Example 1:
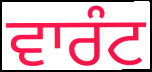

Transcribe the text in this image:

ਵਾਰੰਟ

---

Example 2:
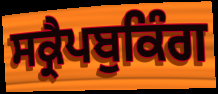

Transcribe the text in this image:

ਸਕ੍ਰੈਪਬੁਕਿੰਗ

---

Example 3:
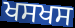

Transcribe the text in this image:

ਖਸਖਸ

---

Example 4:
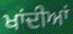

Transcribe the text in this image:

ਖਾਂਦੀਆਂ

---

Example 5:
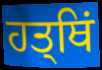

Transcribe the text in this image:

ਹਤ੍ਥਿਂ